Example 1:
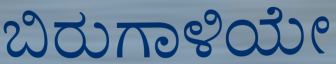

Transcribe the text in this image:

ಬಿರುಗಾಳಿಯೇ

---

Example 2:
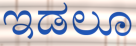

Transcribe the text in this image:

ಇಡಲೂ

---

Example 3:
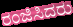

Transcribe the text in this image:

ರಂಜಿಸಿದರು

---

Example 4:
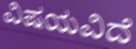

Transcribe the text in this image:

ವಿಷಯವಿದೆ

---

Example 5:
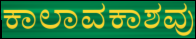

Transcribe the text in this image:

ಕಾಲಾವಕಾಶವು